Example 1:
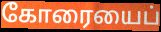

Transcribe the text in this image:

கோரையைப்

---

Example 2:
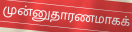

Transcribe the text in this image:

முன்னுதாரணமாகக்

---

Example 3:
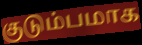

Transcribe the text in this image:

குடும்பமாக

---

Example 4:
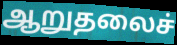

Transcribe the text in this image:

ஆறுதலைச்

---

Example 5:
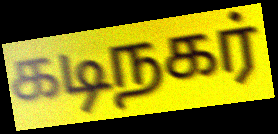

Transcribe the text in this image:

கடிநகர்